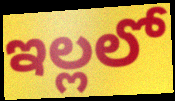
ఇల్లలో